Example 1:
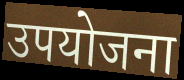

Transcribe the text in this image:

उपयोजना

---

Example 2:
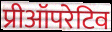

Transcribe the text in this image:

प्रीऑपरेटिव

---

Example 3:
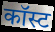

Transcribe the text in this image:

कॉस्ट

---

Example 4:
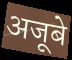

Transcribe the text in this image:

अजूबे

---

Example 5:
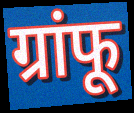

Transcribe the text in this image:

ग्रांफू